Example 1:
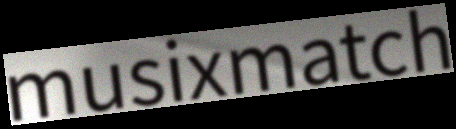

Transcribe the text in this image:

musixmatch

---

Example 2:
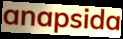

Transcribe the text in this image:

anapsida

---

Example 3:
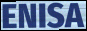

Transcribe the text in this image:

ENISA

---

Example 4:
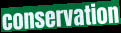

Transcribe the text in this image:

conservation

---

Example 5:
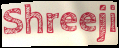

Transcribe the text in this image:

Shreeji